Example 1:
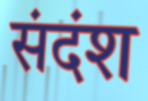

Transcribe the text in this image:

संदंश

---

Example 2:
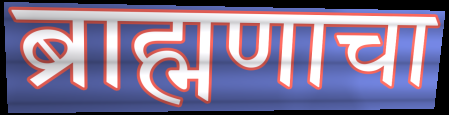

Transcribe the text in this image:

ब्राह्मणाचा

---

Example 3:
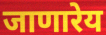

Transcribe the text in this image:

जाणारेय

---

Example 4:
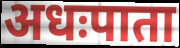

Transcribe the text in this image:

अधःपाता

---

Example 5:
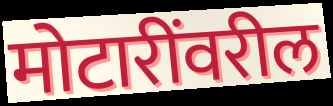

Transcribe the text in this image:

मोटारींवरील